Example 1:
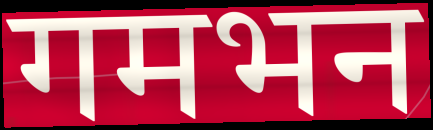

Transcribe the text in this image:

गमभन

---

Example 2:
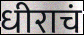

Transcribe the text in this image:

धीराचं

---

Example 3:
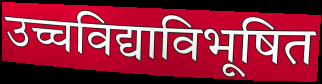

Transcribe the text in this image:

उच्चविद्याविभूषित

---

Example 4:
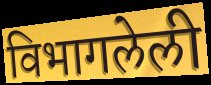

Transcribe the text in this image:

विभागलेली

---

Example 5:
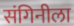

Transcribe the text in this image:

संगिनीला